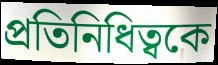
প্রতিনিধিত্বকে